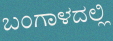
ಬಂಗಾಳದಲ್ಲಿ